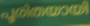
പൂരിതയായി